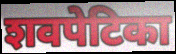
शवपेटिका